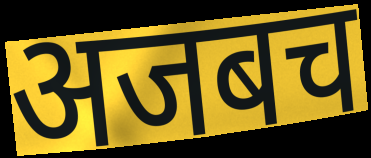
अजबच